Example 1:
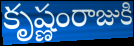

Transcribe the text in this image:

కృష్ణంరాజుకి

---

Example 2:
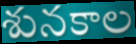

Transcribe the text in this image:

శునకాల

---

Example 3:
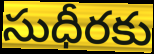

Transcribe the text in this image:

సుధీరకు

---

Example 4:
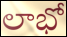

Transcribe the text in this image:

లాభో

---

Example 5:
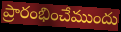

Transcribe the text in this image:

ప్రారంభించేముందు